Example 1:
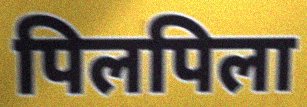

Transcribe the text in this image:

पिलपिला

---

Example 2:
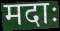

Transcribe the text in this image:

मदाः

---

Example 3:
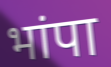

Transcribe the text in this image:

भांपा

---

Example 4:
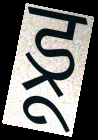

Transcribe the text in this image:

ड्रू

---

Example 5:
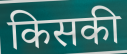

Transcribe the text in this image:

किसकी